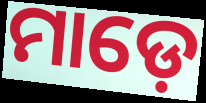
ମାଡ଼େ